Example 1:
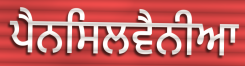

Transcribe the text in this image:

ਪੈਨਸਿਲਵੈਨੀਆ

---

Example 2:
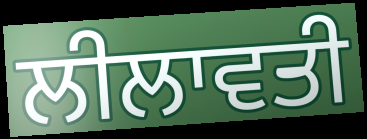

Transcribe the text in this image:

ਲੀਲਾਵਤੀ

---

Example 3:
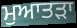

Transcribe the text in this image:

ਮੁਆਤੜਾ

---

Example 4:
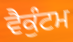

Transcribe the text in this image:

ਵੈਕੁੰਟਮ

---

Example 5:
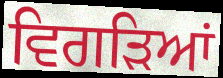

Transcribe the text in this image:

ਵਿਗੜਿਆਂ